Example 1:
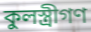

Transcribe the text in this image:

কুলস্ত্রীগণ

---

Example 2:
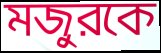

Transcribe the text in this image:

মজুরকে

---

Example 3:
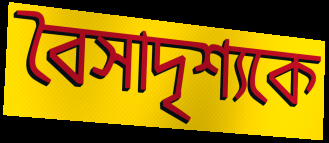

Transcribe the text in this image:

বৈসাদৃশ্যকে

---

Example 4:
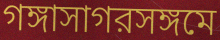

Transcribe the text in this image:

গঙ্গাসাগরসঙ্গমে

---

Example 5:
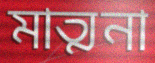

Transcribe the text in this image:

মাত্মনা